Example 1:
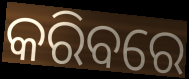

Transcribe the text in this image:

କରିବରେ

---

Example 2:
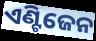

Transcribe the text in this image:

ଏଣ୍ଟିଜେନ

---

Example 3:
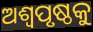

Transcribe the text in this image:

ଅଶ୍ୱପୃଷ୍ଠକୁ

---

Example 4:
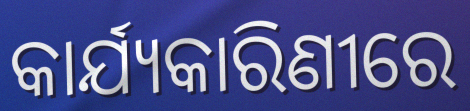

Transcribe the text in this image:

କାର୍ଯ୍ୟକାରିଣୀରେ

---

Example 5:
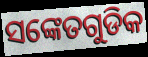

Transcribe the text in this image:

ସଙ୍କେତଗୁଡିକ